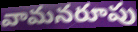
వామనరూపు